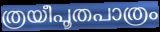
ത്രയീപൂതപാത്രം